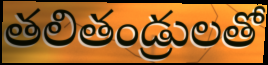
తలితండ్రులతో